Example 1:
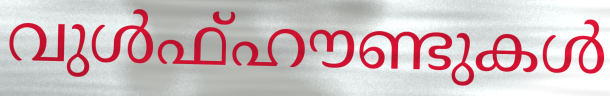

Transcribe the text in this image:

വുൾഫ്ഹൗണ്ടുകൾ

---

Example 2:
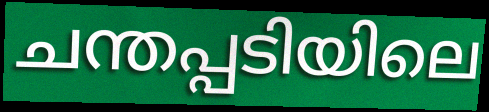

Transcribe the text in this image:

ചന്തപ്പടിയിലെ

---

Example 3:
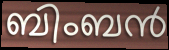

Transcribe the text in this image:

ബിംബൻ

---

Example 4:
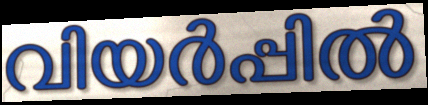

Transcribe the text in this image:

വിയർപ്പിൽ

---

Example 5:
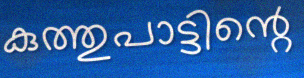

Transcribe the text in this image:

കുത്തുപാട്ടിന്റെ